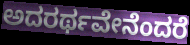
ಅದರರ್ಥವೇನೆಂದರೆ